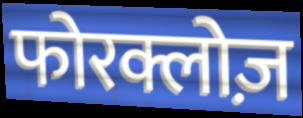
फोरक्लोज़